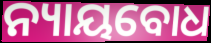
ନ୍ୟାୟବୋଧ